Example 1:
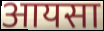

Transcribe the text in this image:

आयसा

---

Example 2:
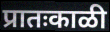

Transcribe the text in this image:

प्रातःकाळी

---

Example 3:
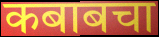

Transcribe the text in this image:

कबाबचा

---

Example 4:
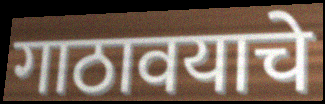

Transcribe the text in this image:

गाठावयाचे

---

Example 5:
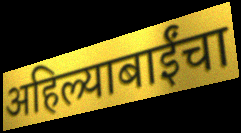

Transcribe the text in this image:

अहिल्याबाईंचा